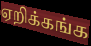
ஏறிக்கங்க